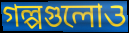
গল্পগুলোও